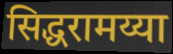
सिद्धरामय्या